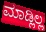
ಮಾಡ್ಲಿಲ್ಲ